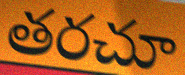
తరచూ